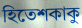
হিতেশকাকু